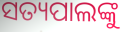
ସତ୍ୟପାଲଙ୍କୁ